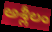
అశ్లీలం